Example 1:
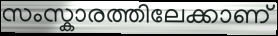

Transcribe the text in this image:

സംസ്കാരത്തിലേക്കാണ്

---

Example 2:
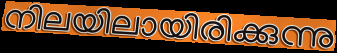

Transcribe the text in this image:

നിലയിലായിരിക്കുന്നു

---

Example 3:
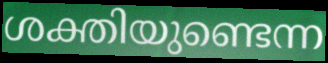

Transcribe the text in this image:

ശക്തിയുണ്ടെന്ന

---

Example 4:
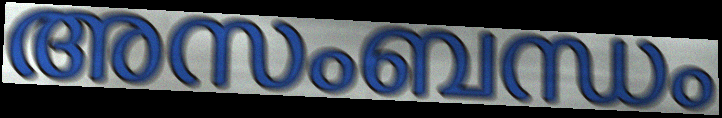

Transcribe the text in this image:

അസംബന്ധം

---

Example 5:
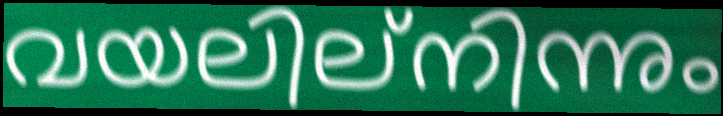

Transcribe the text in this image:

വയലില്നിന്നും